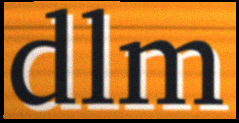
dlm